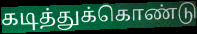
கடித்துக்கொண்டு